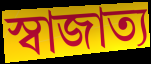
স্বাজাত্য